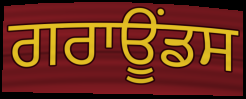
ਗਰਾਊਂਡਸ